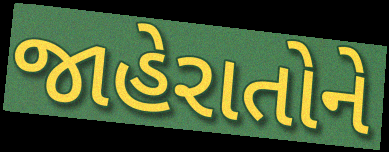
જાહેરાતોને